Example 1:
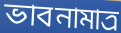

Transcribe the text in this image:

ভাবনামাত্র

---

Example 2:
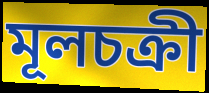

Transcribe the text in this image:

মূলচক্রী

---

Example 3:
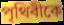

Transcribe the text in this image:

পৃথিবীকে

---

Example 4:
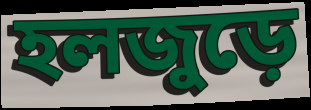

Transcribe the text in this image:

হলজুড়ে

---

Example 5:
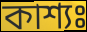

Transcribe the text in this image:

কাশ্যঃ